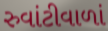
રુવાંટીવાળાં